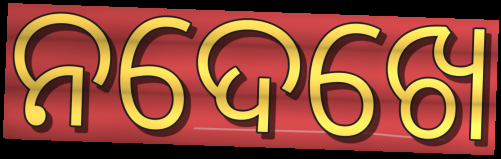
ନଦେଖେ